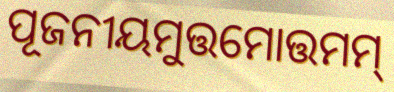
ପୂଜନୀୟମୁତ୍ତମୋତ୍ତମମ୍